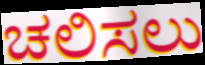
ಚಲಿಸಲು